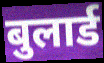
बुलार्ड